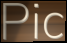
Pic